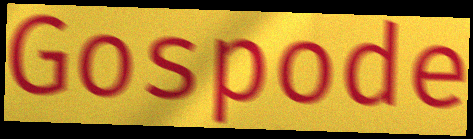
Gospode